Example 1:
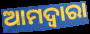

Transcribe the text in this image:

ଆମଦ୍ୱାରା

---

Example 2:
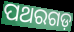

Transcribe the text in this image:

ପଥରଗଡ଼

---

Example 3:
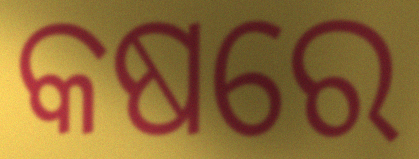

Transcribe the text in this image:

କଷରେ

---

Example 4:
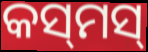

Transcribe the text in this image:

କସ୍‌ମସ୍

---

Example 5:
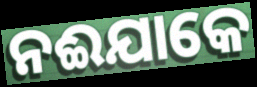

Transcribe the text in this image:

ନଈଯାକେ